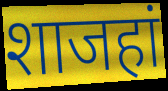
शाजहां